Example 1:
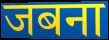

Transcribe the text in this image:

जबना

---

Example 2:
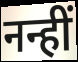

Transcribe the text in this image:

नन्हीं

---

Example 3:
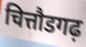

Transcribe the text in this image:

चित्तौडगढ़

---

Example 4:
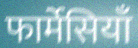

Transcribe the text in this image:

फार्मेसियाँ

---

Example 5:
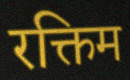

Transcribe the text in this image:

रक्तिम